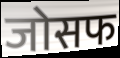
जोसफ